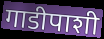
गाडीपाशी